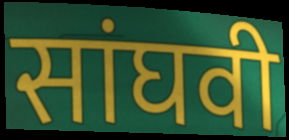
सांघवी